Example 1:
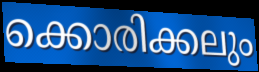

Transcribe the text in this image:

ക്കൊരിക്കലും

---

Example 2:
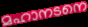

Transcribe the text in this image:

മഹാനടനെ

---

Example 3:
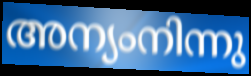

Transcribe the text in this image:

അന്യംനിന്നു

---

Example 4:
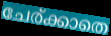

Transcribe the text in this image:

ചേര്ക്കാതെ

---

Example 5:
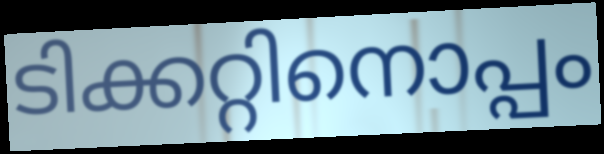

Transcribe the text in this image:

ടിക്കറ്റിനൊപ്പം